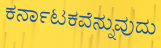
ಕರ್ನಾಟಕವೆನ್ನುವುದು